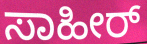
ಸಾಹೀರ್